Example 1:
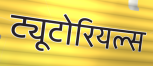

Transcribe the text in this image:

ट्यूटोरियल्स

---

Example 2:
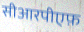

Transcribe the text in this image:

सीआरपीएफ़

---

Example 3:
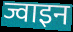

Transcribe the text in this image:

ज्‍वाइन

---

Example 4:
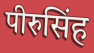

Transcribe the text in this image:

पीरुसिंह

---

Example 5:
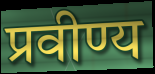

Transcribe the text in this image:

प्रवीण्य